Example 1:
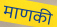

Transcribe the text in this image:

माणकी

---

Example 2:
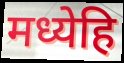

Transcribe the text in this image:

मध्येहि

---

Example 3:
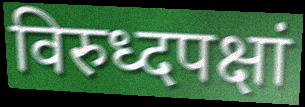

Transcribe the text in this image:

विरुध्दपक्षां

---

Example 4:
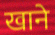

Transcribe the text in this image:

खाने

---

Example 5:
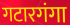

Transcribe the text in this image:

गटारगंगा